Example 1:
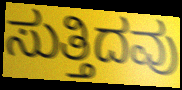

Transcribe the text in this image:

ಸುತ್ತಿದವು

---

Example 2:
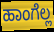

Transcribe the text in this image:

ಹಾಂಗೆಲ್ಲ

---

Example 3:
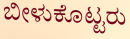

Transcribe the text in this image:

ಬೀಳುಕೊಟ್ಟರು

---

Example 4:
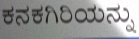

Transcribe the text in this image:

ಕನಕಗಿರಿಯನ್ನು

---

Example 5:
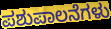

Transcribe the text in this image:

ಪಶುಪಾಲನೆಗಳು